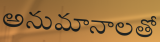
అనుమానాలతో